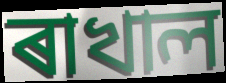
ৰাখাল